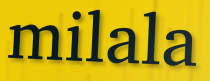
milala